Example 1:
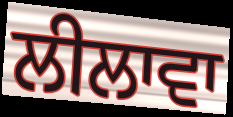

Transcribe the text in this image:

ਲੀਲਾਵਾ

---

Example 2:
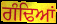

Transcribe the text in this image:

ਗੰਢਿਆਂ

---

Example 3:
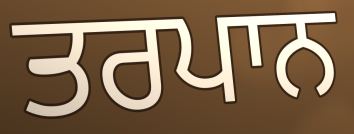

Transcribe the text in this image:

ਤਰਪਾਨ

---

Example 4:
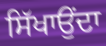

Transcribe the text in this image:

ਸਿੱਖਾਉਂਦਾ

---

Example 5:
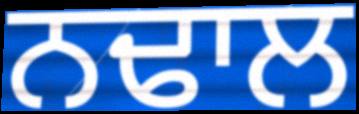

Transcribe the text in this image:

ਨਢਾਲ